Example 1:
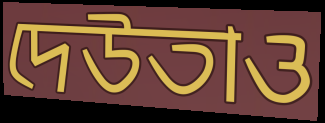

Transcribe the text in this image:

দেউতাও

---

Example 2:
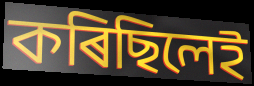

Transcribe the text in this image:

কৰিছিলেই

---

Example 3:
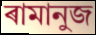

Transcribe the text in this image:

ৰামানুজ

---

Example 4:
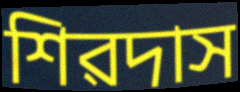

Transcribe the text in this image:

শিৱদাস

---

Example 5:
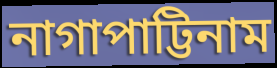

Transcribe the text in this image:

নাগাপাট্টিনাম